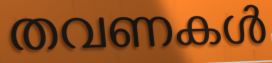
തവണകൾ